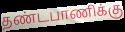
தண்டபாணிக்கு